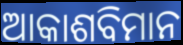
ଆକାଶବିମାନ